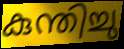
കുന്തിച്ചു